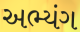
અભ્યંગ